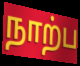
நாற்ப